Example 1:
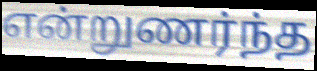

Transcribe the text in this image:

என்றுணர்ந்த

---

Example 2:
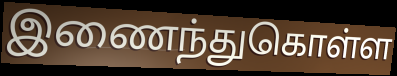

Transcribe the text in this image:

இணைந்துகொள்ள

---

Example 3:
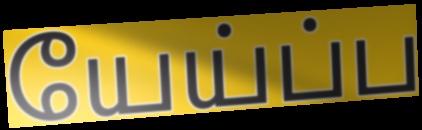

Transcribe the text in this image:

யேய்ப்ப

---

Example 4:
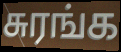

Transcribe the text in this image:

சுரங்க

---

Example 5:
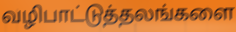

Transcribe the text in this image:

வழிபாட்டுத்தலங்களை